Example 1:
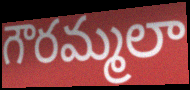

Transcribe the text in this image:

గౌరమ్మలా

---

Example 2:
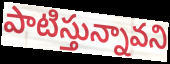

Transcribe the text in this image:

పాటిస్తున్నావని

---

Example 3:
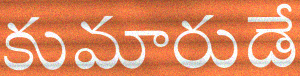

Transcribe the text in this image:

కుమారుడే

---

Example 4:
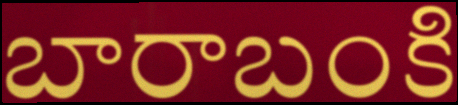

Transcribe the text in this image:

బారాబంకి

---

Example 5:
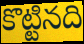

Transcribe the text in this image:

కొట్టినది